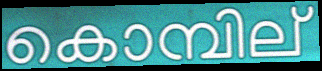
കൊമ്പില്